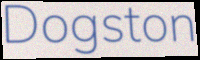
Dogston